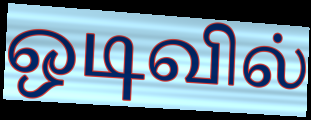
ஒடிவில்